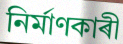
নিৰ্মাণকাৰী